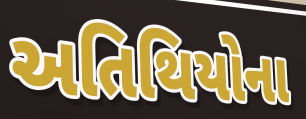
અતિથિયોના